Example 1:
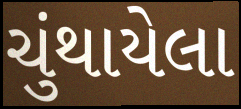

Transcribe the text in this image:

ચુંથાયેલા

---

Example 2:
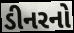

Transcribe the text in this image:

ડીનરનો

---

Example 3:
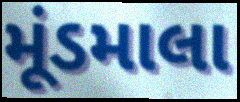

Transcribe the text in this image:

મૂંડમાલા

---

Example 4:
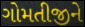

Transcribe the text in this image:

ગોમતીજીને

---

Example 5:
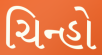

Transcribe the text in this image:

ચિન્હો